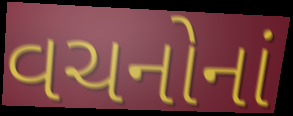
વચનોનાં